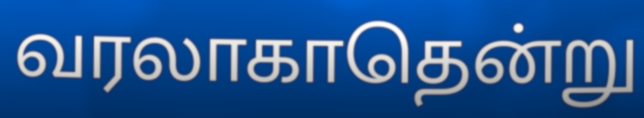
வரலாகாதென்று